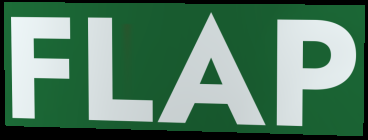
FLAP